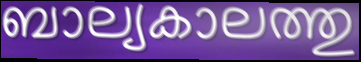
ബാല്യകാലത്തു